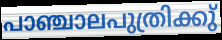
പാഞ്ചാലപുത്രിക്കു്